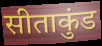
सीताकुंड